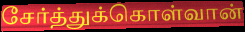
சேர்த்துக்கொள்வான்